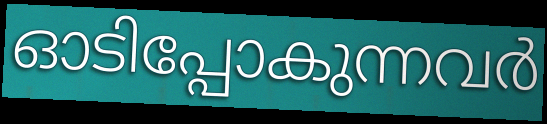
ഓടിപ്പോകുന്നവർ